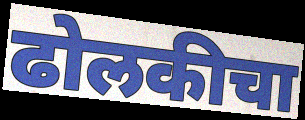
ढोलकीचा